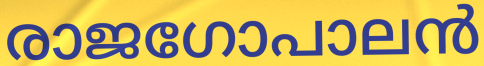
രാജഗോപാലൻ